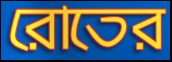
রোতের